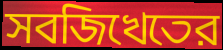
সবজিখেতের